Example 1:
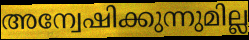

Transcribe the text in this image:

അന്വേഷിക്കുന്നുമില്ല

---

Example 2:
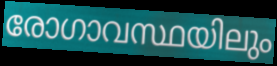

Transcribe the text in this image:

രോഗാവസ്ഥയിലും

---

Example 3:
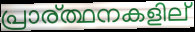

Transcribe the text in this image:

പ്രാര്ത്ഥനകളില്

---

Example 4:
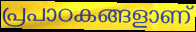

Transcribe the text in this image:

പ്രപാഠകങ്ങളാണ്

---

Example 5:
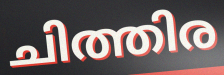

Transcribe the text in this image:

ചിത്തിര